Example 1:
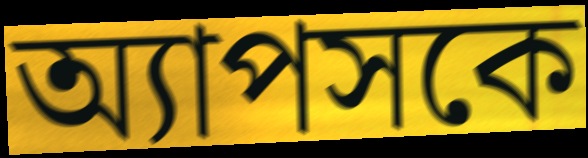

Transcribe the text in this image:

অ্যাপসকে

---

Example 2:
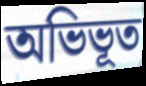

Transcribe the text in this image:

অভিভূত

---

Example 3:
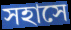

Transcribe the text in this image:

সহাসে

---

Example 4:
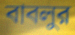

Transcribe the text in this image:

বাবলুর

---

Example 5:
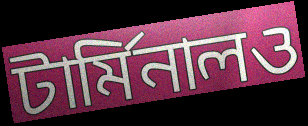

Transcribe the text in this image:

টার্মিনালও